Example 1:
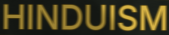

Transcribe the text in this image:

HINDUISM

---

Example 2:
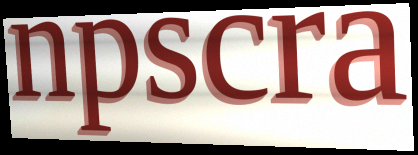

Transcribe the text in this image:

npscra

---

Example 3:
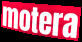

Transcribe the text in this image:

motera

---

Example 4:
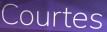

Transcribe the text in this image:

Courtes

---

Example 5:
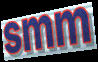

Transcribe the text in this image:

smm